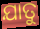
ଯାତୁ